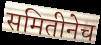
समितीनेच